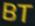
BT